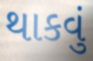
થાકવું